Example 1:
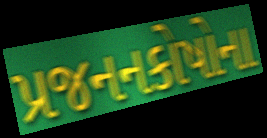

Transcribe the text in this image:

પ્રજનનકોષોના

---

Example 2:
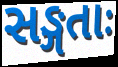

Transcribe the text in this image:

સઙ્ગતાઃ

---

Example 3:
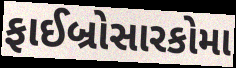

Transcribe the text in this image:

ફાઈબ્રોસારકોમા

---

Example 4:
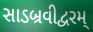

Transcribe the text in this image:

સાડબ્રવીદ્વરમ્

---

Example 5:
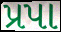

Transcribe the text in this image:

પ્રપા